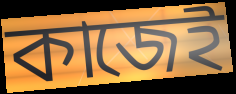
কাজেই